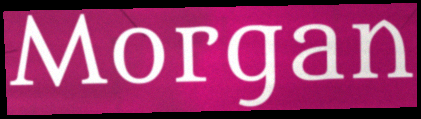
Morgan